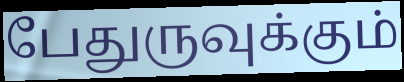
பேதுருவுக்கும்